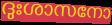
ദുഃശാസനോ